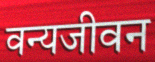
वन्यजीवन